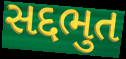
સદ્દભુત